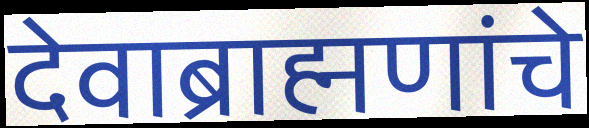
देवाब्राह्मणांचे